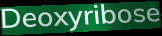
Deoxyribose